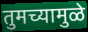
तुमच्यामुळे